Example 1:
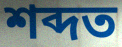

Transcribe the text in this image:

শব্দত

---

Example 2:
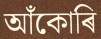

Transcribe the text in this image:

আঁকোৰি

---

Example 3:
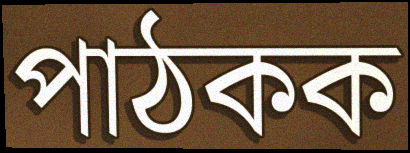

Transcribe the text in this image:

পাঠকক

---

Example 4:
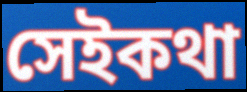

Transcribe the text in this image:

সেইকথা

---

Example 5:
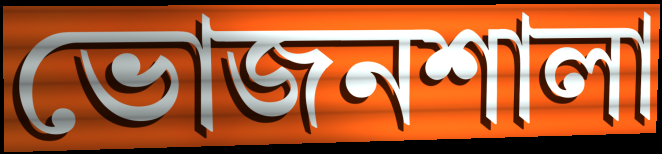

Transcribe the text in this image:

ভোজনশালা